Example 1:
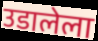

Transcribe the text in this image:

उडालेला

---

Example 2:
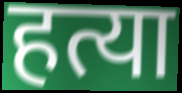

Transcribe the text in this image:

हत्या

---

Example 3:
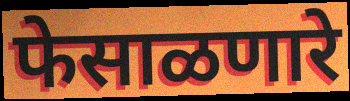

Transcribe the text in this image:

फेसाळणारे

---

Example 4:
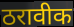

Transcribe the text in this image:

ठरावीक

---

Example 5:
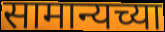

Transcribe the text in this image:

सामान्यच्या